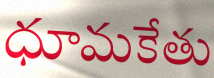
ధూమకేతు